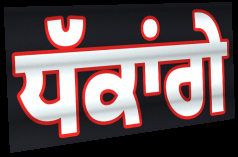
ਧੱਕਾਂਗੇ